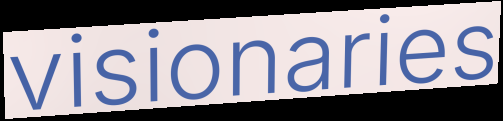
visionaries